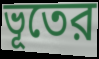
ভূতের